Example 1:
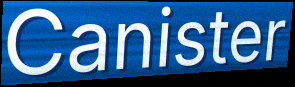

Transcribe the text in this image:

Canister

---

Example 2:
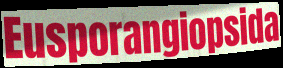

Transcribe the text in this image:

Eusporangiopsida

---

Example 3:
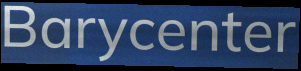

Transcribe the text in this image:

Barycenter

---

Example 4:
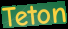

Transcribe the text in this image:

Teton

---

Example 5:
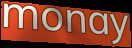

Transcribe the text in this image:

monay